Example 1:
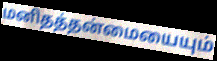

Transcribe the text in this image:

மனிதத்தன்மையையும்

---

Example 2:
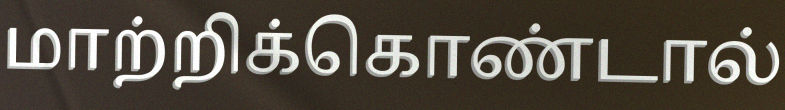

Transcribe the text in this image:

மாற்றிக்கொண்டால்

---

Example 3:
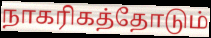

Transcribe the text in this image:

நாகரிகத்தோடும்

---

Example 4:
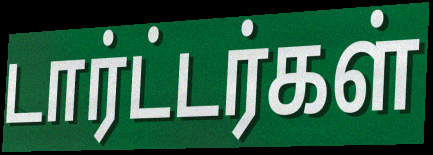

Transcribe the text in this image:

டார்ட்டர்கள்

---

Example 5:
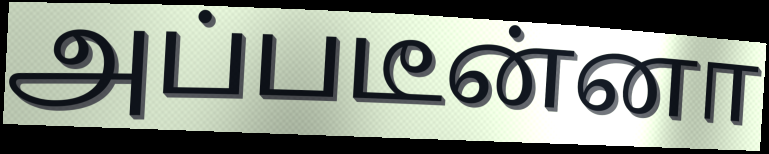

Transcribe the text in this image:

அப்படீன்னா